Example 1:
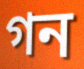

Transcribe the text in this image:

গন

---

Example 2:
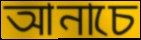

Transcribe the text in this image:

আনাচে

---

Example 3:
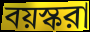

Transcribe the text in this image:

বয়স্করা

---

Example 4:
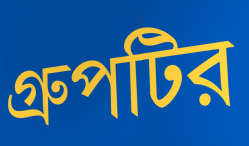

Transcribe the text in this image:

গ্রুপটির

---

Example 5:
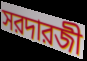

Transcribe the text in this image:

সরদারজী